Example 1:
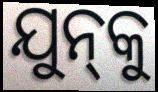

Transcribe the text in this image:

ଯୁନ୍‍କୁ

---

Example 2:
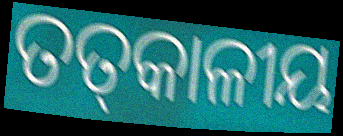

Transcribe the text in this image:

ତତ୍‌କାଳୀୟ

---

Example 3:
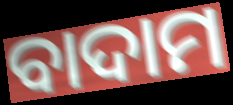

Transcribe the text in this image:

ବାଦାମ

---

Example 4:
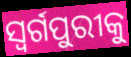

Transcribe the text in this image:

ସ୍ୱର୍ଗପୁରୀକୁ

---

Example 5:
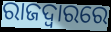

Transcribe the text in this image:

ରାଜଦ୍ୱାରରେ